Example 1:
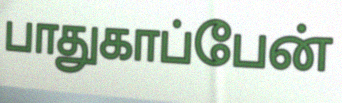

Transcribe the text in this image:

பாதுகாப்பேன்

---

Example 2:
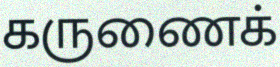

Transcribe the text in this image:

கருணைக்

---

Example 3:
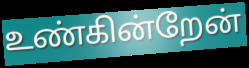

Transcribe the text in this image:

உண்கின்றேன்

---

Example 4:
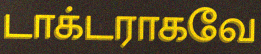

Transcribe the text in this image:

டாக்டராகவே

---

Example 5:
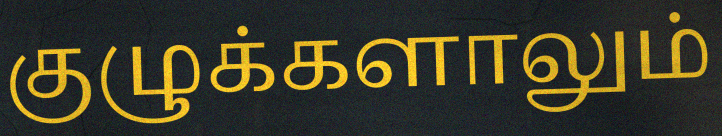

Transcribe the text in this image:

குழுக்களாலும்